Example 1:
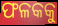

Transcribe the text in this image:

ଫଳକକୁ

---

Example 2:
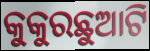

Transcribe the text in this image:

କୁକୁରଛୁଆଟି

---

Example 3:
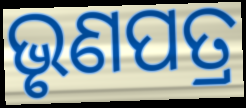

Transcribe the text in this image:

ଭୃଣପତ୍ର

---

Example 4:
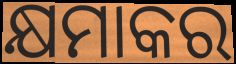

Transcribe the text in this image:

କ୍ଷମାକର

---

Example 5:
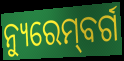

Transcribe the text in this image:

ନ୍ୟୁରେମ୍‌ବର୍ଗ